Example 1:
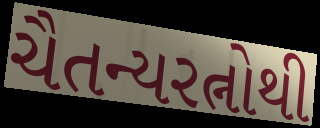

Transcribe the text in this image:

ચૈતન્યરત્નોથી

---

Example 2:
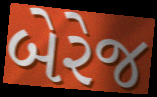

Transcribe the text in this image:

બેરેજ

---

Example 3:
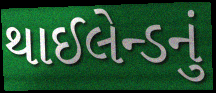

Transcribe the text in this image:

થાઈલેન્ડનું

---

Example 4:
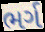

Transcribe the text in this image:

ભર્ગ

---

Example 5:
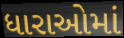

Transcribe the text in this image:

ધારાઓમાં